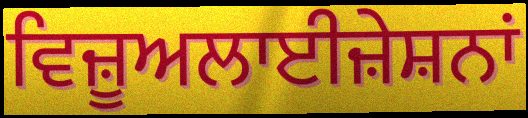
ਵਿਜ਼ੂਅਲਾਈਜ਼ੇਸ਼ਨਾਂ